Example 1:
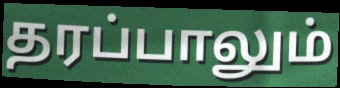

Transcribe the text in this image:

தரப்பாலும்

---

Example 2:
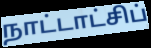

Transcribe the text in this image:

நாட்டாட்சிப்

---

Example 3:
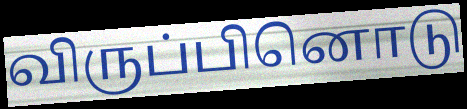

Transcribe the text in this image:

விருப்பினொடு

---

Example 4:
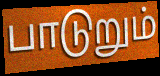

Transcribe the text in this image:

பாடுறும்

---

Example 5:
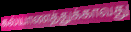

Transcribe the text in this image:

கல்யாணத்துக்காவது